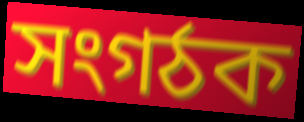
সংগঠক